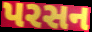
પરસન